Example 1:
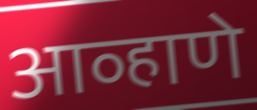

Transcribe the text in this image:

आव्हाणे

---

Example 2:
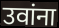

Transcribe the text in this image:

उवांना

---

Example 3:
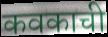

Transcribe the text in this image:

कवकाची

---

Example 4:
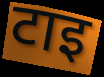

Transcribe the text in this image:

टाइ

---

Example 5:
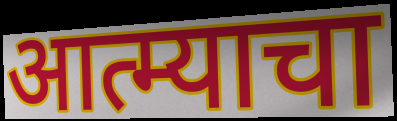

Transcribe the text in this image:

आत्म्याचा